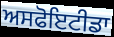
ਅਸਫੋਇਟੀਡਾ